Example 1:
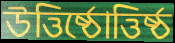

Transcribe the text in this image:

উত্তিষ্ঠোত্তিষ্ঠ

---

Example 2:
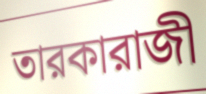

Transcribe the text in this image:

তারকারাজী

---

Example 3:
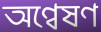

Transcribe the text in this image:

অণ্বেষণ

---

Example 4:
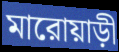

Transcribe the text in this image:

মারোয়াড়ী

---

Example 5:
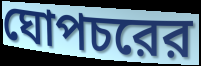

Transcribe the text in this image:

ঘোপচরের